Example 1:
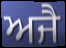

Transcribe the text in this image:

ਅਜੈ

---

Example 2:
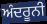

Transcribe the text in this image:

ਅੰਦਰੂਨੀ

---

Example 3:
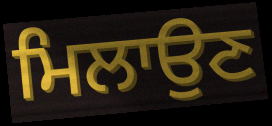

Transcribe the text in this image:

ਮਿਲਾਉਣ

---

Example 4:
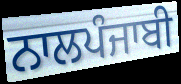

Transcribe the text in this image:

ਨਾਲਪੰਜਾਬੀ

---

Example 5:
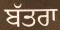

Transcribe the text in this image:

ਬੱਤਰਾ